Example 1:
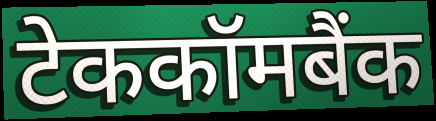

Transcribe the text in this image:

टेककॉमबैंक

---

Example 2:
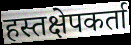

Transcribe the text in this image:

हस्तक्षेपकर्ता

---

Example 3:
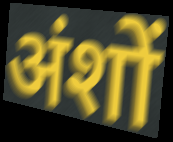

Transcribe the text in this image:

अंशों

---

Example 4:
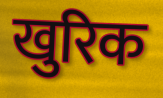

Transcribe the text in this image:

खुरिक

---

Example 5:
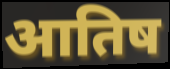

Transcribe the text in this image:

आतिष